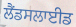
ਲੈਂਡਸਲਾਈਡ